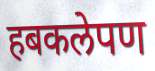
हबकलेपण